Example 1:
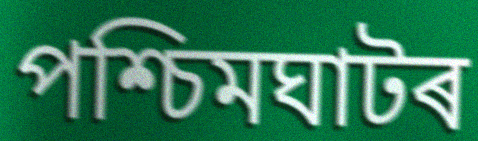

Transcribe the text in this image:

পশ্চিমঘাটৰ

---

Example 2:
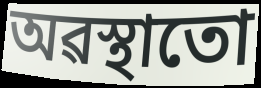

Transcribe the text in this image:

অৱস্থাতো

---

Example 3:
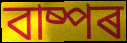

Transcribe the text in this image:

বাষ্পৰ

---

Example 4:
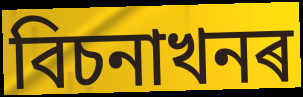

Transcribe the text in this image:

বিচনাখনৰ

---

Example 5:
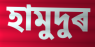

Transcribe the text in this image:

হামুদুৰ